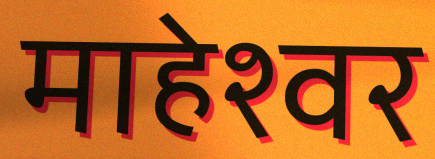
माहेश्वर